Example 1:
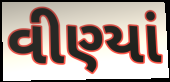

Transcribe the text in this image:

વીણ્યાં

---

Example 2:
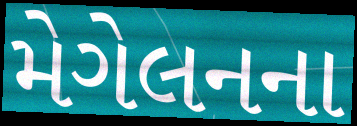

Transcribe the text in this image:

મેગેલનના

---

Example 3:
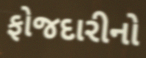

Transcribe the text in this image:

ફોજદારીનો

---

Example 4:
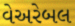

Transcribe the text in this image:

વેઅરેબલ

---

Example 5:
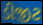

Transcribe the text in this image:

ડીજીટ